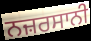
ਨਜ਼ਰਸਾਨੀ